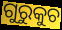
ଗୁରୁକୁଚ